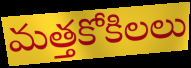
మత్తకోకిలలు